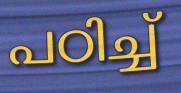
പഠിച്ച്